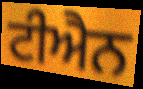
ਟੀਐਨ